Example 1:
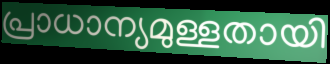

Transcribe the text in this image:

പ്രാധാന്യമുള്ളതായി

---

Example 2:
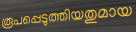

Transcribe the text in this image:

രൂപപ്പെടുത്തിയതുമായ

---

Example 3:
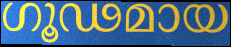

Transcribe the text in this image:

ഗൂഢമായ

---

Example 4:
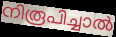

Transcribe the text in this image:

നിരൂപിച്ചാൽ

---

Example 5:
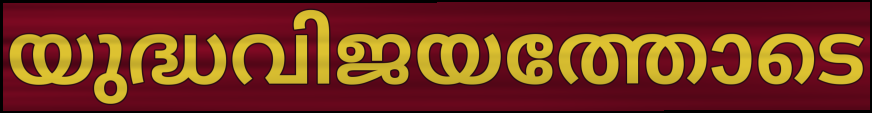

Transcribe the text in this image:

യുദ്ധവിജയത്തോടെ